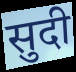
सुदी